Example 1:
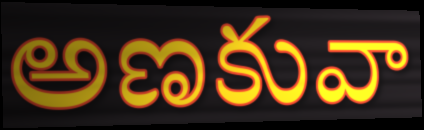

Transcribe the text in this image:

అణకువా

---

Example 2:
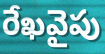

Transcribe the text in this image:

రేఖవైపు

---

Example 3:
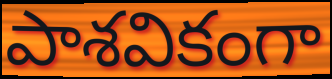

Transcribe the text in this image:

పాశవికంగా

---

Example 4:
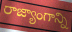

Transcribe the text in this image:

రాజ్యాంగాన్ని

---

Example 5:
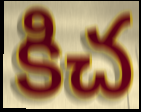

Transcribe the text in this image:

కిచ